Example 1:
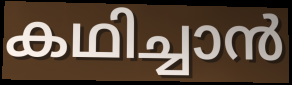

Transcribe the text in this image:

കഥിച്ചാൻ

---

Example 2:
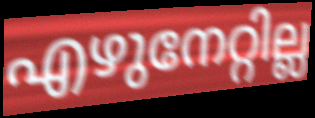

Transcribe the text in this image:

എഴുനേറ്റില്ല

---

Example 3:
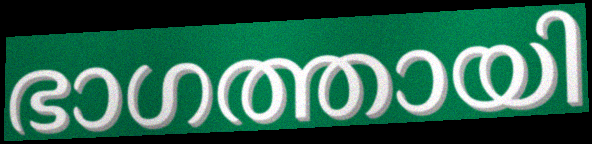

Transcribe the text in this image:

ഭാഗത്തായി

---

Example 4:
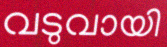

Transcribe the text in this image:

വടുവായി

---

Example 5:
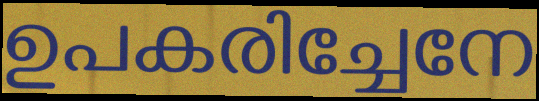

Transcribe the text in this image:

ഉപകരിച്ചേനേ